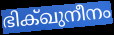
ഭിക്ഖുനീനം